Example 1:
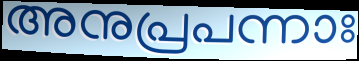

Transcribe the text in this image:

അനുപ്രപന്നാഃ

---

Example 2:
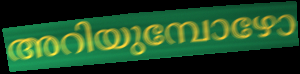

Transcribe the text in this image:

അറിയുമ്പോഴോ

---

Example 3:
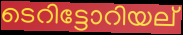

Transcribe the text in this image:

ടെറിട്ടോറിയല്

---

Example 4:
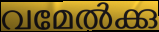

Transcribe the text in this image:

വമേൽക്കു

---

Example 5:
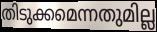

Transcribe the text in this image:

തിടുക്കമെന്നതുമില്ല